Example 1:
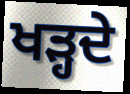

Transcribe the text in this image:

ਖੜ੍ਹਦੇ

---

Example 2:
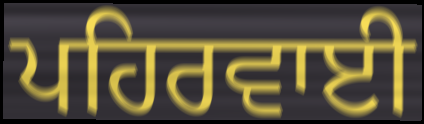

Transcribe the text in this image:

ਪਹਿਰਵਾਈ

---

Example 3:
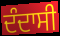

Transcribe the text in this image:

ਦੰਦਾਸੀ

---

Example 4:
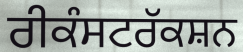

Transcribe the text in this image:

ਰੀਕੰਸਟਰੱਕਸ਼ਨ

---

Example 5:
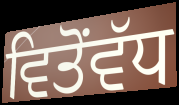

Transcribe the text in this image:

ਵਿਤੋਂਵੱਧ